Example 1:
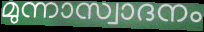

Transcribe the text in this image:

മുന്നാസ്വാദനം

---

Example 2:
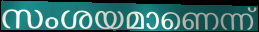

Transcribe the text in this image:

സംശയമാണെന്ന്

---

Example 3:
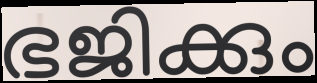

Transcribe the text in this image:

ഭജിക്കും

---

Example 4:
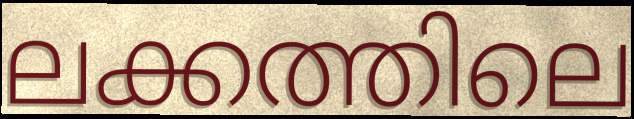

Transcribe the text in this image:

ലക്കത്തിലെ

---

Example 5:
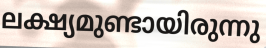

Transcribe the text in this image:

ലക്ഷ്യമുണ്ടായിരുന്നു